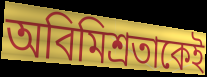
অবিমিশ্রতাকেই